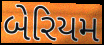
બેરિયમ